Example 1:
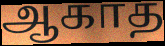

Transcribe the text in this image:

ஆகாத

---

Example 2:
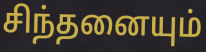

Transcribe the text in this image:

சிந்தனையும்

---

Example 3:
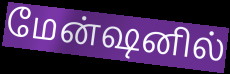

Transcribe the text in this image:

மேன்ஷனில்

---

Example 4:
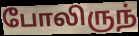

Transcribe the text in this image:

போலிருந்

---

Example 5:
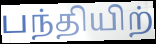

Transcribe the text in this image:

பந்தியிற்